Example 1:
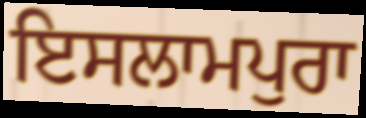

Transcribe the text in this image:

ਇਸਲਾਮਪੁਰਾ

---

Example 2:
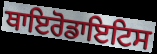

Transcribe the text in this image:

ਥਾਇਰੋਡਾਇਟਿਸ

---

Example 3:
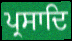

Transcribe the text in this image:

ਪ੍ਰਸਾਦਿ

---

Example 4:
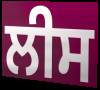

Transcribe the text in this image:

ਲੀਸ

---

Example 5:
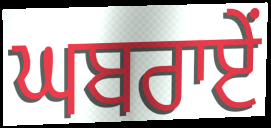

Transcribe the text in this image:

ਘਬਰਾਏਂ